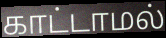
காட்டாமல்